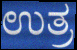
ಉತ್ರ